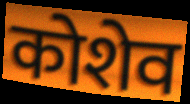
कोशेव